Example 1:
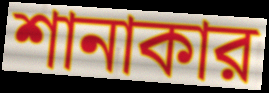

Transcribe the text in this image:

শানাকার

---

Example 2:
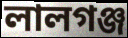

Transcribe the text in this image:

লালগঞ্জ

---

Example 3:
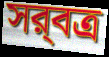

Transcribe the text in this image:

সর্‍বত্র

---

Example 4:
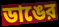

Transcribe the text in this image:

ডাঙের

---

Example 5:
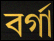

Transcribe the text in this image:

বর্গা